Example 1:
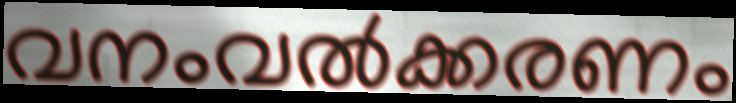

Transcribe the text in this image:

വനംവൽക്കരണം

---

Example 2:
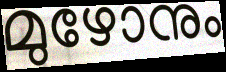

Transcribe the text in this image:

മുഴോനും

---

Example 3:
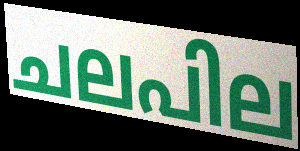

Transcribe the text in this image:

ചലപില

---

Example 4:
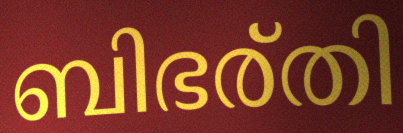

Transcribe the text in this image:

ബിഭര്തി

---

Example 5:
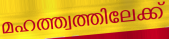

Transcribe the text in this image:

മഹത്ത്വത്തിലേക്ക്